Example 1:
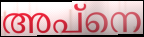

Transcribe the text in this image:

അപ്നെ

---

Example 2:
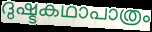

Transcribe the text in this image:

ദുഷ്ടകഥാപാത്രം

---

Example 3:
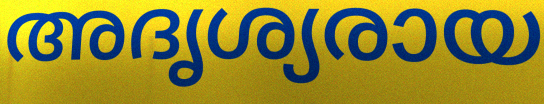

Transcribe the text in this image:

അദൃശ്യരായ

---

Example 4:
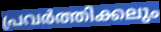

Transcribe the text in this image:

പ്രവർത്തിക്കലും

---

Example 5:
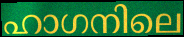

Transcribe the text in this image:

ഹാഗനിലെ